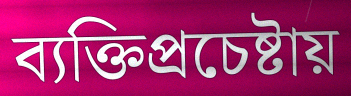
ব্যক্তিপ্রচেষ্টায়